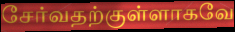
சேர்வதற்குள்ளாகவே